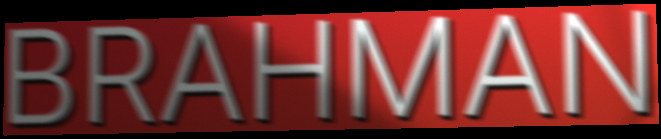
BRAHMAN